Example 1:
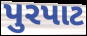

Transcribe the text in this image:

પુરપાટ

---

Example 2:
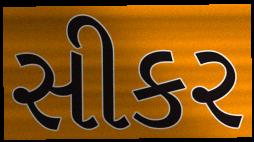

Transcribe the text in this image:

સીકર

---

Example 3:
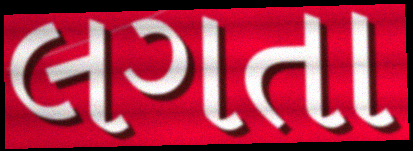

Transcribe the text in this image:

લગતા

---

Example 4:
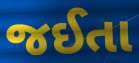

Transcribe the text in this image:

જઈતા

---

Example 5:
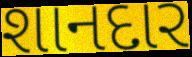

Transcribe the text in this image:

શાનદાર